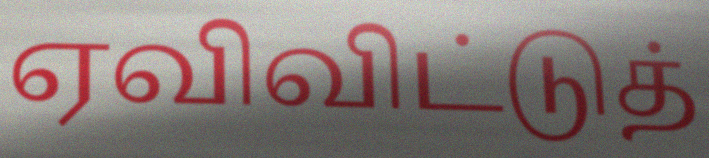
ஏவிவிட்டுத்